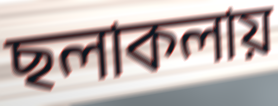
ছলাকলায়